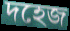
দহেজ